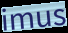
imus